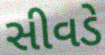
સીવડે